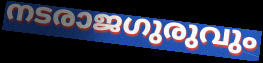
നടരാജഗുരുവും